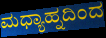
ಮಧ್ಯಾಹ್ನದಿಂದ